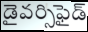
డైవర్సిఫైడ్